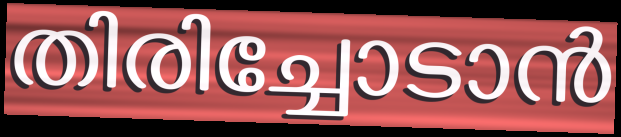
തിരിച്ചോടാൻ